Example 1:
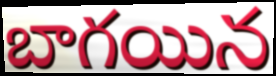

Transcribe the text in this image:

బాగయిన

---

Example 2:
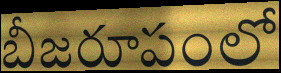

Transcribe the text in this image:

బీజరూపంలో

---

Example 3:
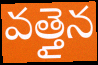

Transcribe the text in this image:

వత్తైన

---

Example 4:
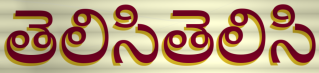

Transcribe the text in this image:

తెలిసితెలిసి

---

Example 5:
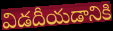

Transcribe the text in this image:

విడదీయడానికి